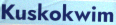
Kuskokwim